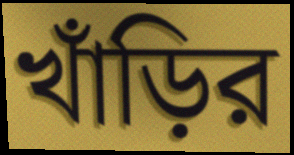
খাঁড়ির